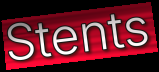
Stents